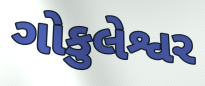
ગોકુલેશ્વર